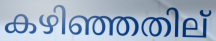
കഴിഞ്ഞതില്